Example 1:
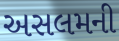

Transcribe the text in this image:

અસલમની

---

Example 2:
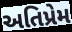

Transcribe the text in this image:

અતિપ્રેમ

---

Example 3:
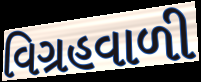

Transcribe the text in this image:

વિગ્રહવાળી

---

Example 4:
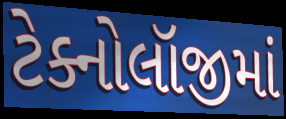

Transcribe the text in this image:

ટેક્નોલૉજીમાં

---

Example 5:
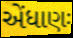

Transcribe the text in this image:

એંધાણઃ